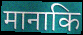
मानाकि